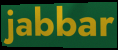
jabbar